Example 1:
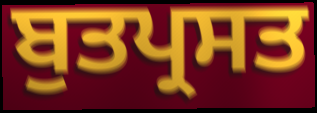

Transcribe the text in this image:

ਬੁਤਪ੍ਰਸਤ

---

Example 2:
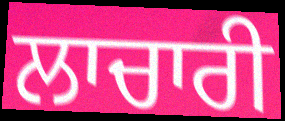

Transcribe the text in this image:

ਲਾਚਾਰੀ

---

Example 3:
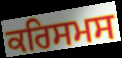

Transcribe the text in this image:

ਕਰਿਸਮਸ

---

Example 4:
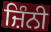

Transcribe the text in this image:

ਜ਼ਿੰਨੀ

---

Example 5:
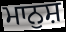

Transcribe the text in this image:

ਮਾਨੁਸ਼